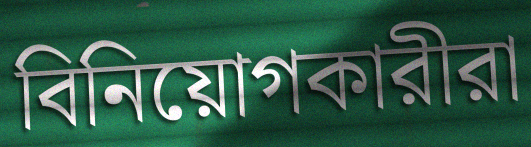
বিনিয়োগকারীরা